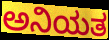
ಅನಿಯತ